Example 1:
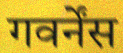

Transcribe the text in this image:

गवर्नेंस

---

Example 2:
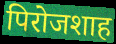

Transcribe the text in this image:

पिरोजशाह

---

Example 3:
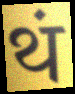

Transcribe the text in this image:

थं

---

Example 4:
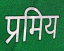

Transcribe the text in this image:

प्रमिय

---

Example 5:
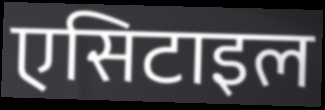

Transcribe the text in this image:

एसिटाइल